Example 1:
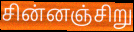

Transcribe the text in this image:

சின்னஞ்சிறு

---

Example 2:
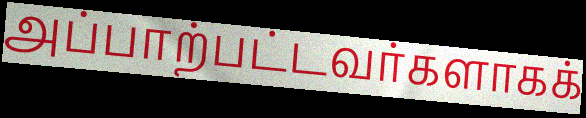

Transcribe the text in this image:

அப்பாற்பட்டவர்களாகக்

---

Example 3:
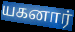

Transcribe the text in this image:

யகனார்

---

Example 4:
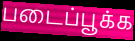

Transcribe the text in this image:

படைப்பூக்க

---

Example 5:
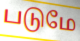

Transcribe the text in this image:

படுமே